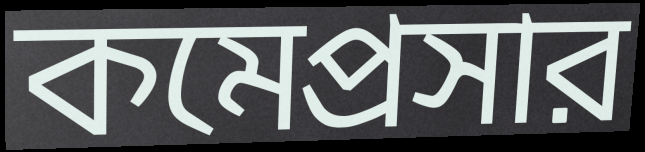
কমেপ্রসার